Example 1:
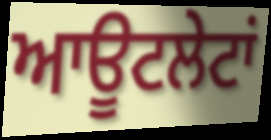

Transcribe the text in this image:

ਆਊਟਲੇਟਾਂ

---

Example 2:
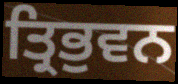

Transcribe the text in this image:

ਤ੍ਰਿਭੁਵਨ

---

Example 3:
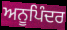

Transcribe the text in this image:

ਅਨੂਪਿੰਦਰ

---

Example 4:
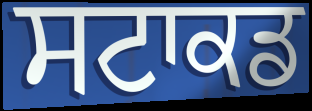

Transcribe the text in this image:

ਸਟਾਕਡ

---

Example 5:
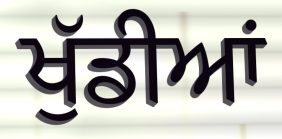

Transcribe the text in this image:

ਖੁੱਡੀਆਂ